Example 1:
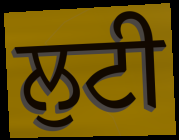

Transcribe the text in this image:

ਲੁਟੀ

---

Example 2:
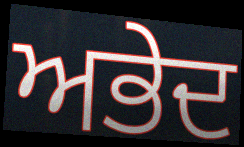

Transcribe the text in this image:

ਅਭੇਦ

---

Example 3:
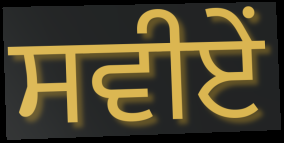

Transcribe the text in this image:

ਸਵੀਏਂ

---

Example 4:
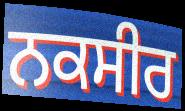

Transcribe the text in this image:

ਨਕਸੀਰ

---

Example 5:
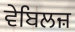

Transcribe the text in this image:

ਵੇਬਿਲਜ਼